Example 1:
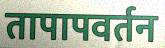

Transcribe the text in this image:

तापापवर्तन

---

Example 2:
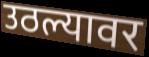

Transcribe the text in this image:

उठल्यावर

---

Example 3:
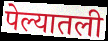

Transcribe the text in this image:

पेल्यातली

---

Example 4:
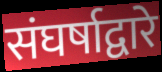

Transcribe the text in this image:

संघर्षाद्वारे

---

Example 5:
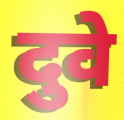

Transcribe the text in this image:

दुवे